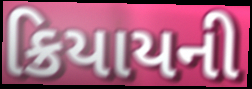
ક્રિયાયની